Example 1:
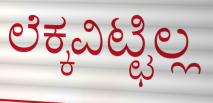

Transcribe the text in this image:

ಲೆಕ್ಕವಿಟ್ಟಿಲ್ಲ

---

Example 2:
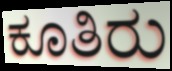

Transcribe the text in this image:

ಕೂತಿರು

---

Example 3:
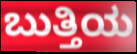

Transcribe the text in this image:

ಬುತ್ತಿಯ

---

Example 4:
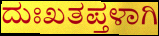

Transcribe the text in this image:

ದುಃಖತಪ್ತಳಾಗಿ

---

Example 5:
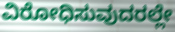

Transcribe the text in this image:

ವಿರೋಧಿಸುವುದರಲ್ಲೇ